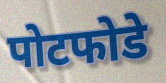
पोटफोडे